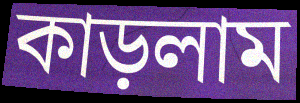
কাড়লাম